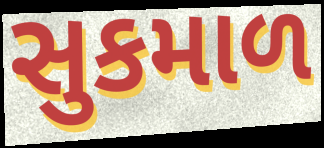
સુકમાળ